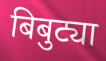
बिबुट्या